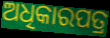
ଅଧିକାରପତ୍ର